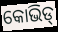
କୋଭିଡ୍